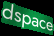
dspace